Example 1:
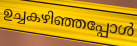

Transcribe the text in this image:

ഉച്ചകഴിഞ്ഞപ്പോൾ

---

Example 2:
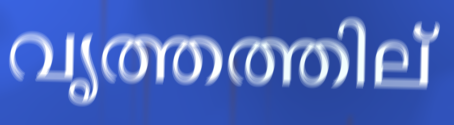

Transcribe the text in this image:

വൃത്തത്തില്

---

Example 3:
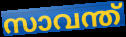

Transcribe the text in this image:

സാവന്ത്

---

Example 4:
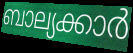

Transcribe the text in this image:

ബാല്യക്കാർ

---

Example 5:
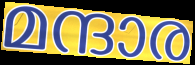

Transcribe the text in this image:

മന്ദാര